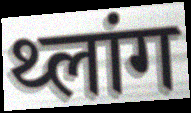
थ्लांग